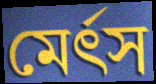
মের্ৎস